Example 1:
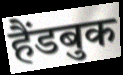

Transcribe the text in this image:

हैंडबुक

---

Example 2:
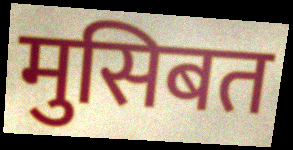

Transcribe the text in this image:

मुसिबत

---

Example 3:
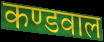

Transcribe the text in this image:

कण्डवाल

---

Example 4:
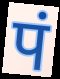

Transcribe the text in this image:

पं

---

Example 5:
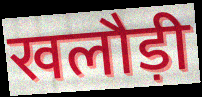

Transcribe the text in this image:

खलौड़ी